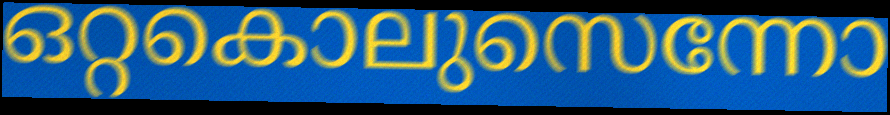
ഒറ്റകൊലുസെന്നോ